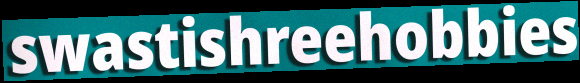
swastishreehobbies